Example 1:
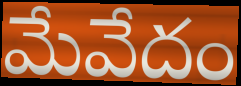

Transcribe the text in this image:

మేవేదం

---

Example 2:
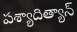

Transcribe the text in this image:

పశ్యాదిత్యాన్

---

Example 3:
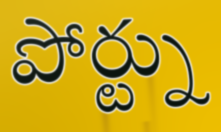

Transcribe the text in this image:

పోర్ట్ను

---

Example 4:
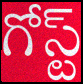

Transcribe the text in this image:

గోస్ట్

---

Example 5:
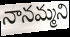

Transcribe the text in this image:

నానమ్మని